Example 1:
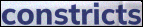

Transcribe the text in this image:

constricts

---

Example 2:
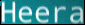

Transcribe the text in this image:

Heera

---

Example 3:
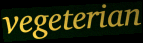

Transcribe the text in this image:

vegeterian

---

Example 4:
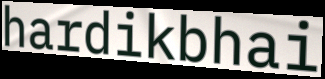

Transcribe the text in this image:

hardikbhai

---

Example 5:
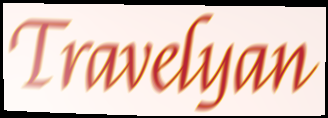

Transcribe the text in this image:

Travelyan